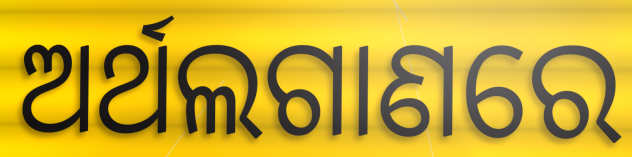
ଅର୍ଥଲଗାଣରେ